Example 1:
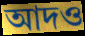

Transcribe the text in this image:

আদও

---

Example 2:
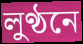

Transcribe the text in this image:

লুণ্ঠনে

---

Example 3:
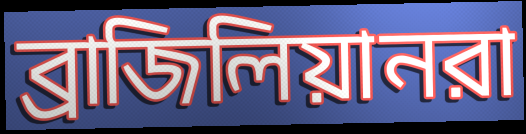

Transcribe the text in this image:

ব্রাজিলিয়ানরা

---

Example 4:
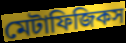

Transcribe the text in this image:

মেটাফিজিকস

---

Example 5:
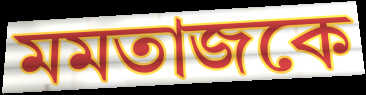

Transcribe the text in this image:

মমতাজকে